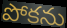
పోకను